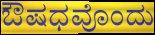
ಔಷಧವೊಂದು